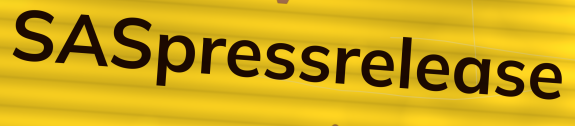
SASpressrelease